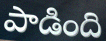
పాడింది